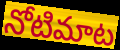
నోటిమాట